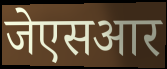
जेएसआर